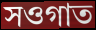
সওগাত